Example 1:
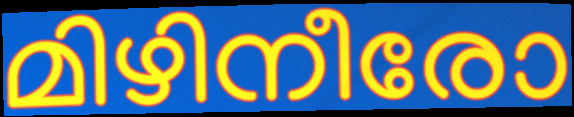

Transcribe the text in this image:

മിഴിനീരോ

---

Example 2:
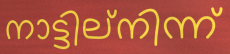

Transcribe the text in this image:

നാട്ടില്നിന്ന്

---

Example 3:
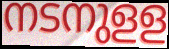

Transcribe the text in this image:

നടനുളള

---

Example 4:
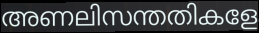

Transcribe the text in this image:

അണലിസന്തതികളേ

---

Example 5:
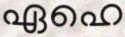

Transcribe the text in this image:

ഏഹെ